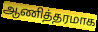
ஆணித்தரமாக